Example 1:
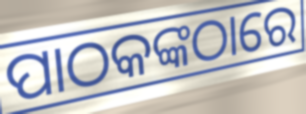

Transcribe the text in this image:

ପାଠକଙ୍କଠାରେ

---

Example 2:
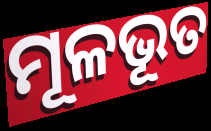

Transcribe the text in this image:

ମୂଳଭୂତ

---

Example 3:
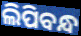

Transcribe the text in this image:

ଲିପିବନ୍ଧ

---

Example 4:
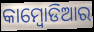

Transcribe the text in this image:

କାମ୍ବୋଡିଆର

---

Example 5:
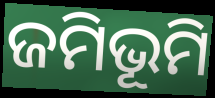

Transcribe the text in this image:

ଜମିଭୂମି